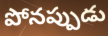
పోనప్పుడు